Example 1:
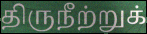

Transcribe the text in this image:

திருநீற்றுக்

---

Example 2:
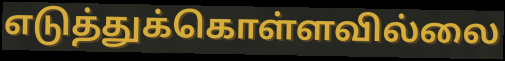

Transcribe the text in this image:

எடுத்துக்கொள்ளவில்லை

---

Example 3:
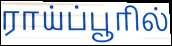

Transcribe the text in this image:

ராய்ப்பூரில்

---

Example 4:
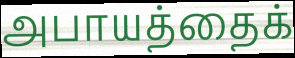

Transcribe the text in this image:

அபாயத்தைக்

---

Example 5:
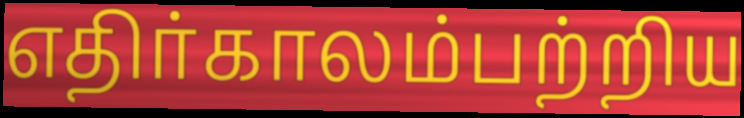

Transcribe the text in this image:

எதிர்காலம்பற்றிய